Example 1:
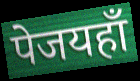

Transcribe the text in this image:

पेजयहाँ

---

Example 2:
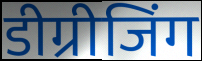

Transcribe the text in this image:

डीग्रीजिंग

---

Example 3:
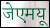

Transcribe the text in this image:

जेएमयू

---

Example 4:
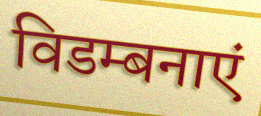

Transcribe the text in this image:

विडम्बनाएं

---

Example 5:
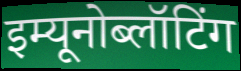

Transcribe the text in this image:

इम्यूनोब्लॉटिंग